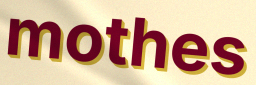
mothes